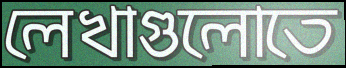
লেখাগুলোতে